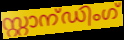
സ്റ്റാന്ഡിംഗ്